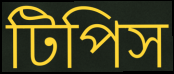
টিপিস